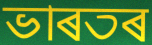
ভাৰতৰ